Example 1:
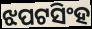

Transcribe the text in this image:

ଝପଟସିଂହ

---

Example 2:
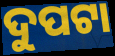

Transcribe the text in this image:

ଦୁପଟା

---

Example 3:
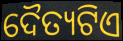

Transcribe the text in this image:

ଦୈତ୍ୟଟିଏ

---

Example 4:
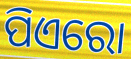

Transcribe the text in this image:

ପିଏରୋ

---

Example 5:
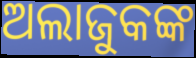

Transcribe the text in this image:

ଅଲାଜୁକଙ୍କ